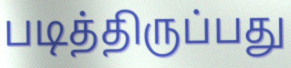
படித்திருப்பது